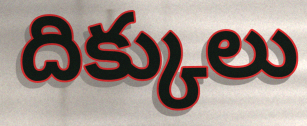
దిక్కులు